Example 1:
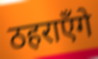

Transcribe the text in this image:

ठहराएँगे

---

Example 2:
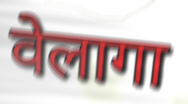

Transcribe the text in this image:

वेलागा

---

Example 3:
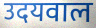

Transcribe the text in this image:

उदयवाल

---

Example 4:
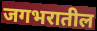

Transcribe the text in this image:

जगभरातील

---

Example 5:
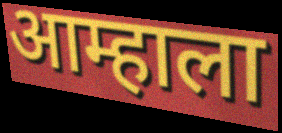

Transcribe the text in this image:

आम्हाला